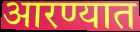
आरण्यात